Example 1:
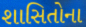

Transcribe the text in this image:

શાસિતોના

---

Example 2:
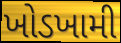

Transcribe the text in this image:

ખોડખામી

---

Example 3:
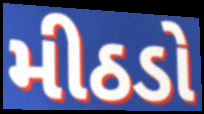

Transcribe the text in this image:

મીઠડો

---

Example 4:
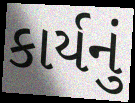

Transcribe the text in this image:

કાર્યનું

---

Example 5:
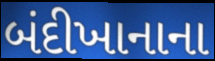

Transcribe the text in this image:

બંદીખાનાના